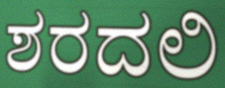
ಶರದಲಿ